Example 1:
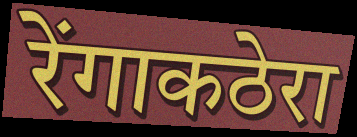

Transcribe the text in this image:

रेंगाकठेरा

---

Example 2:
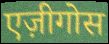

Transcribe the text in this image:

एज़ीगोस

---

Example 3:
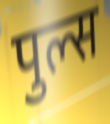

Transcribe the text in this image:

पुल्स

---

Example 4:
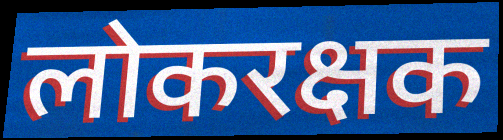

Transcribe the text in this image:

लोकरक्षक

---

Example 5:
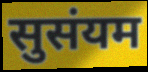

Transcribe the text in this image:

सुसंयम